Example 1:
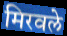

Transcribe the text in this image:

मिरवले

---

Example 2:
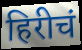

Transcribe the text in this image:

हिरीचं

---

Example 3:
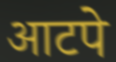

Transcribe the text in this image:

आटपे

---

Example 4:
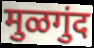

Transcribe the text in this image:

मुळगुंद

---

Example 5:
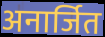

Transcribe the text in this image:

अनार्जित